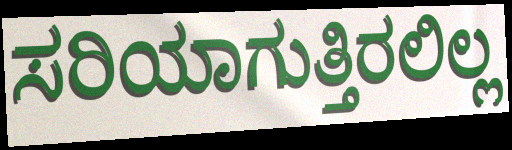
ಸರಿಯಾಗುತ್ತಿರಲಿಲ್ಲ